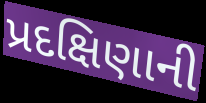
પ્રદક્ષિણાની